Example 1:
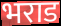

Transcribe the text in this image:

भराड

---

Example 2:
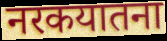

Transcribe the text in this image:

नरकयातना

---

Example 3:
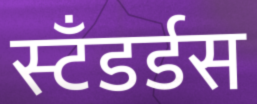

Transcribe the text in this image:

स्टँडर्डस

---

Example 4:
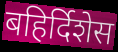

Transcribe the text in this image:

बहिर्दिशेस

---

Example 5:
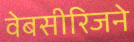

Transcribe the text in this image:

वेबसीरिजने